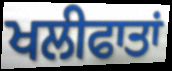
ਖਲੀਫਾਤਾਂ